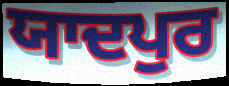
ਯਾਦਪੁਰ